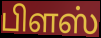
பிளஸ்